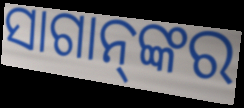
ସାଗାନ୍‌ଙ୍କର